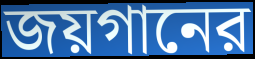
জয়গানের